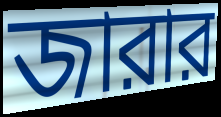
জারার